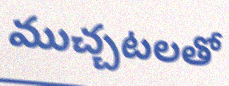
ముచ్చటలతో